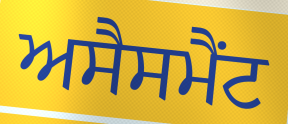
ਅਸੈਸਮੈਂਟ